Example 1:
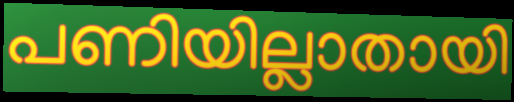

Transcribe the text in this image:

പണിയില്ലാതായി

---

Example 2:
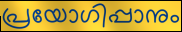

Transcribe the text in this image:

പ്രയോഗിപ്പാനും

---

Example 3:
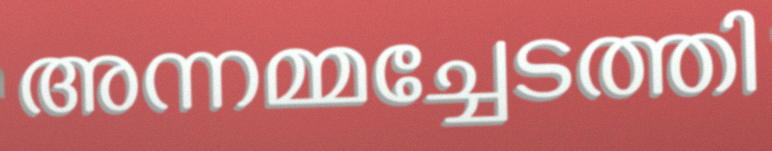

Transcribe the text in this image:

അന്നമ്മച്ചേടത്തി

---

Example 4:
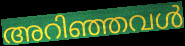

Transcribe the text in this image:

അറിഞ്ഞവൾ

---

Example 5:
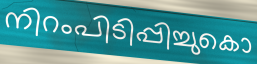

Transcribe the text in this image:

നിറംപിടിപ്പിച്ചുകൊ